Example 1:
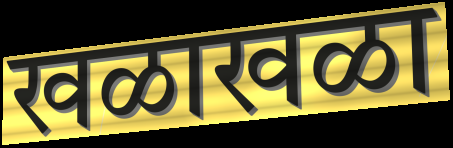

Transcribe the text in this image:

खळाखळा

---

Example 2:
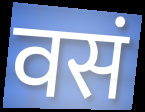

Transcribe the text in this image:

वसं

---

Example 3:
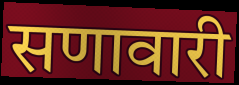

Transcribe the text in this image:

सणावारी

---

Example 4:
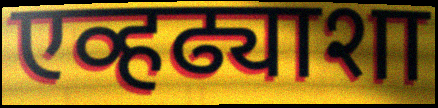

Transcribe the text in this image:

एव्हढ्याशा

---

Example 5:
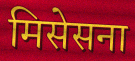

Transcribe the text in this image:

मिसेसना